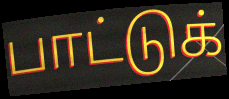
பாட்டுக்